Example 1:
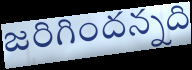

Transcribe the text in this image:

జరిగిందన్నది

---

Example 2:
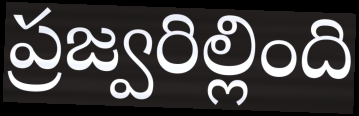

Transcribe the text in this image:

ప్రజ్వరిల్లింది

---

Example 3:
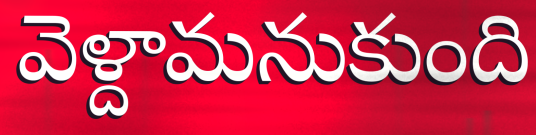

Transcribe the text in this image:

వెళ్దామనుకుంది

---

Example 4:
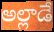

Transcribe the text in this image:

అల్లాడే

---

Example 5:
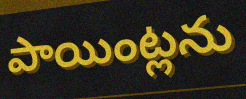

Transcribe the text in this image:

పాయింట్లను